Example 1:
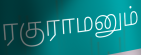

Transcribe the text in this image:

ரகுராமனும்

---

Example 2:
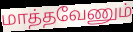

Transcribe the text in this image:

மாத்தவேணும்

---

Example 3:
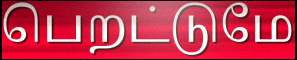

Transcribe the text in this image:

பெறட்டுமே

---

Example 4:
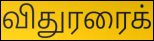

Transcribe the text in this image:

விதுரரைக்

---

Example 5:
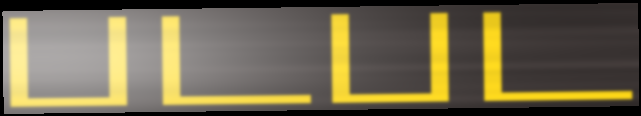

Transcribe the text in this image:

படபட